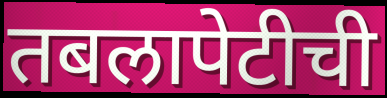
तबलापेटीची